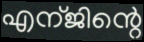
എന്ജിന്റെ